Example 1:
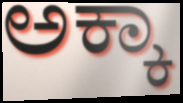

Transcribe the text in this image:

ಅಕ್ಕಾ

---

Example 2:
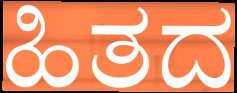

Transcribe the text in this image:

ಹಿತದ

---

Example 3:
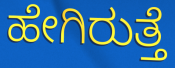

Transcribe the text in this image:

ಹೇಗಿರುತ್ತೆ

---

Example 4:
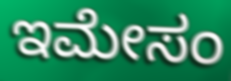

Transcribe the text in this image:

ಇಮೇಸಂ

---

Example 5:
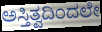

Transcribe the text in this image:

ಅಸ್ತಿತ್ವದಿಂದಲೇ